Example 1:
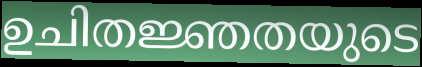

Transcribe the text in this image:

ഉചിതജ്ഞതയുടെ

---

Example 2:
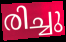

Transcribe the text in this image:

രിച്ചു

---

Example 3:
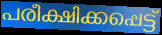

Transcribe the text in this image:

പരീക്ഷിക്കപ്പെട്ട്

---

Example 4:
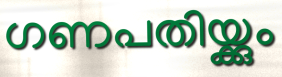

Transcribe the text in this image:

ഗണപതിയ്ക്കും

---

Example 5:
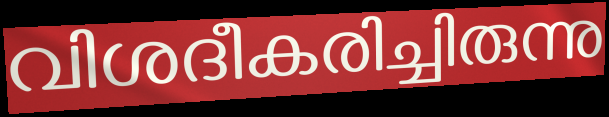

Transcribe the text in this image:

വിശദീകരിച്ചിരുന്നു